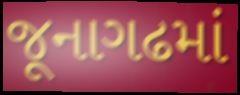
જૂનાગઢમાં